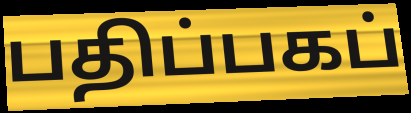
பதிப்பகப்